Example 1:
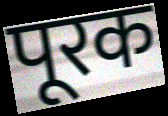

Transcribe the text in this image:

पूरक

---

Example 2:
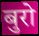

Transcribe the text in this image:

बुरो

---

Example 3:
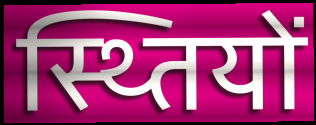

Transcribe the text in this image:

स्थ्तियों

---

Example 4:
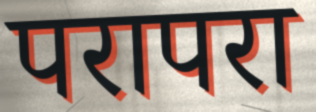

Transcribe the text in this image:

परापरा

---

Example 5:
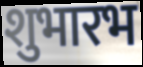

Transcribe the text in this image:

शुभारभ